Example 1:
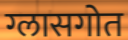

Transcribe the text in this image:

ग्लासगोत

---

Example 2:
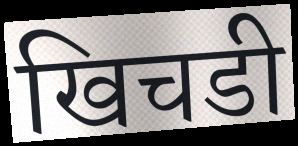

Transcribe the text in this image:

खिचडी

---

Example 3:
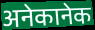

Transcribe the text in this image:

अनेकानेक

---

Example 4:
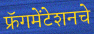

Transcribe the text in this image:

फ्रॅगमेंटेशनचे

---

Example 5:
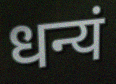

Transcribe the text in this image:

धन्यं